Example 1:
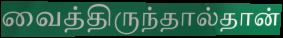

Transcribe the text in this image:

வைத்திருந்தால்தான்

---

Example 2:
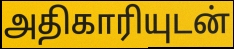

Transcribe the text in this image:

அதிகாரியுடன்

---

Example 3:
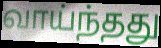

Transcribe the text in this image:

வாய்ந்தது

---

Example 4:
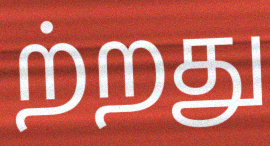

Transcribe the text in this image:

ற்றது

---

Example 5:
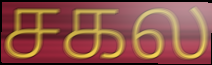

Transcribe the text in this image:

சகல